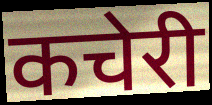
कचेरी